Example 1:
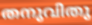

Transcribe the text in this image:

തനുവിതു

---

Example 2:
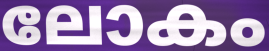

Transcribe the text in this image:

ലോകം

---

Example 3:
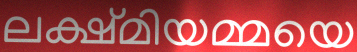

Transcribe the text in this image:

ലക്ഷ്മിയമ്മയെ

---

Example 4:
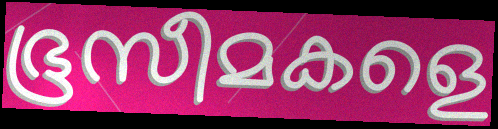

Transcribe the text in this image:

ഭൂസീമകളെ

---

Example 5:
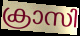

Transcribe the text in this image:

ക്രാസി